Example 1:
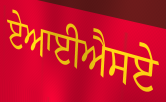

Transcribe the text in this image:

ਏਆਈਐਸਏ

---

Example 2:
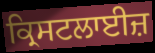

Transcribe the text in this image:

ਕ੍ਰਿਸਟਲਾਈਜ਼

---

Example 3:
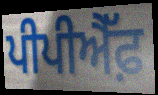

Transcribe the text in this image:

ਪੀਪੀਐੱਫ਼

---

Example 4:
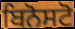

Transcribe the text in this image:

ਬਿਨੋਸਟੋ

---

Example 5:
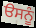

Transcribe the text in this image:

ੳਸਨੂੰ